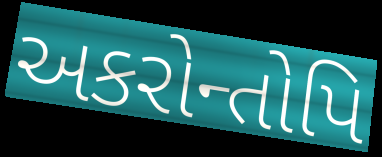
અકરોન્તોપિ